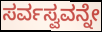
ಸರ್ವಸ್ವವನ್ನೇ